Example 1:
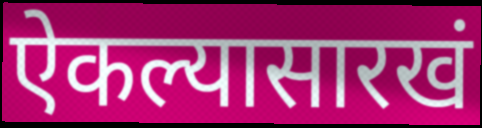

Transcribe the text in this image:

ऐकल्यासारखं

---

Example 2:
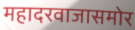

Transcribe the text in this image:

महादरवाजासमोर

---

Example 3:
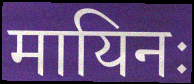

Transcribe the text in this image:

मायिनः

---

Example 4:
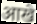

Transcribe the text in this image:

आखे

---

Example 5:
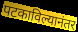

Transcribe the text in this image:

पटकाविल्यानंतर